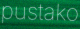
pustako